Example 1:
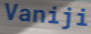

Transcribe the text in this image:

Vaniji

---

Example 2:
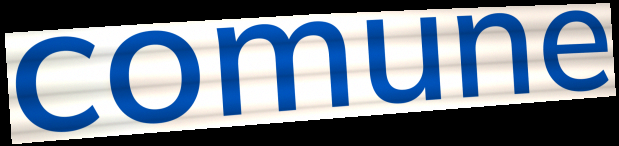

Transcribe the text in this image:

comune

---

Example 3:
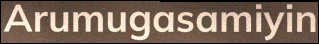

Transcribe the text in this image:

Arumugasamiyin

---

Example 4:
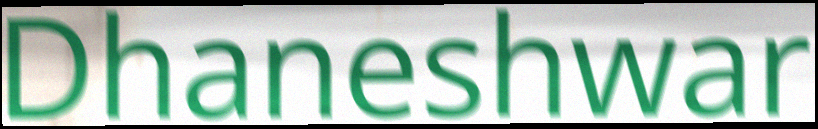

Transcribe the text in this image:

Dhaneshwar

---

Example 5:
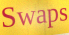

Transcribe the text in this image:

Swaps